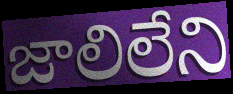
జాలిలేని